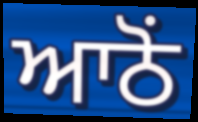
ਆਠੋਂ